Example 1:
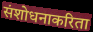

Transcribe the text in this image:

संशोधनाकरिता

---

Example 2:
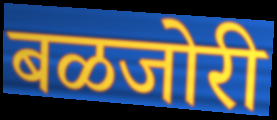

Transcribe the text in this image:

बळजोरी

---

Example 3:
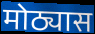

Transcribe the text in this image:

मोठ्यास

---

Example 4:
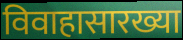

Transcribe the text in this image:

विवाहासारख्या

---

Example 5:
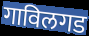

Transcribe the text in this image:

गाविलगड